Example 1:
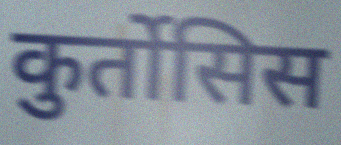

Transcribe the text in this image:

कुर्तोसिस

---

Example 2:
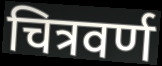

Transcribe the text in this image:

चित्रवर्ण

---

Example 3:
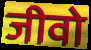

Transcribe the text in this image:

जीवो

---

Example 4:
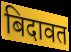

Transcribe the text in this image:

बिदावत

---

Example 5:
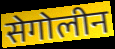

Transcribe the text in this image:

सेगोलीन